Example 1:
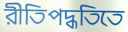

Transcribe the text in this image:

রীতিপদ্ধতিতে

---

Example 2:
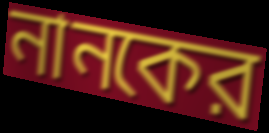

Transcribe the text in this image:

নানকের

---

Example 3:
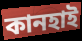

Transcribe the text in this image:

কানহাই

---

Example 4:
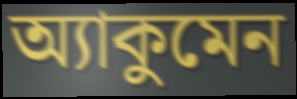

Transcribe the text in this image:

অ্যাকুমেন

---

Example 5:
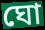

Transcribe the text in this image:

ঘো